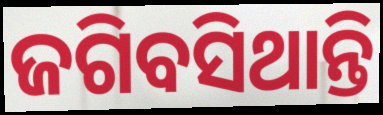
ଜଗିବସିଥାନ୍ତି